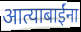
आत्याबाईंना